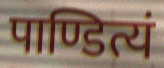
पाण्डित्यं